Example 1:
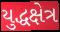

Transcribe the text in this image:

યુદ્ધક્ષેત્ર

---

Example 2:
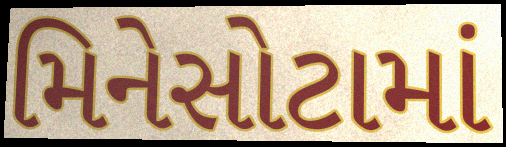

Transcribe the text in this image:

મિનેસોટામાં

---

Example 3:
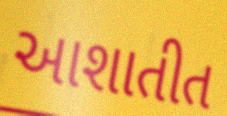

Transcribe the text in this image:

આશાતીત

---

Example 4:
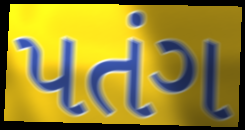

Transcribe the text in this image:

પતંગ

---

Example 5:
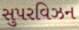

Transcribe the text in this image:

સુપરવિઝન